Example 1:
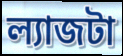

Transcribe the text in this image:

ল্যাজটা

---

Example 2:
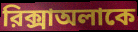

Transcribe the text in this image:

রিক্সাঅলাকে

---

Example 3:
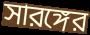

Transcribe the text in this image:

সারঙ্গের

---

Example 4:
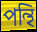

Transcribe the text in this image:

পন্থি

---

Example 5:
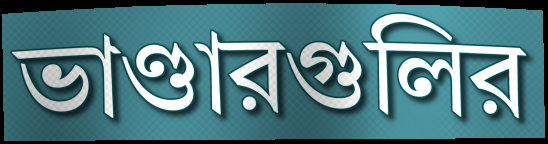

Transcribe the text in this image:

ভাণ্ডারগুলির